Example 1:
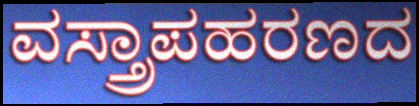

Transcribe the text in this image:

ವಸ್ತ್ರಾಪಹರಣದ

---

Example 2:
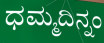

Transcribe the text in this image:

ಧಮ್ಮದಿನ್ನಂ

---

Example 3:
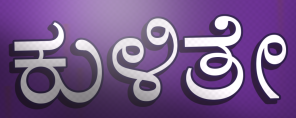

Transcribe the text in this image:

ಕುಳಿತೇ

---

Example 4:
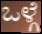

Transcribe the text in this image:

ಒಳ್ಗೆ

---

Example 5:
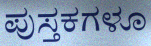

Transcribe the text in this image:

ಪುಸ್ತಕಗಳೂ